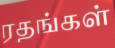
ரதங்கள்